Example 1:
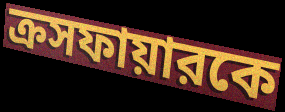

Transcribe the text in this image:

ক্রসফায়ারকে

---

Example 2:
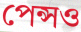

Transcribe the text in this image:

পেন্সও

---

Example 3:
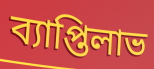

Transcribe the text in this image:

ব্যাপ্তিলাভ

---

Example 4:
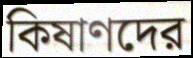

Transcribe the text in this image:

কিষাণদের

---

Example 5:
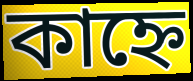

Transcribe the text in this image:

কাহ্নে